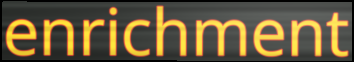
enrichment